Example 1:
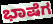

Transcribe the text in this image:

ಭಾಷೆಗ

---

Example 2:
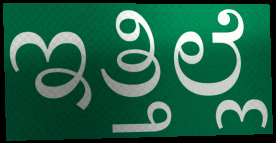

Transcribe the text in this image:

ಇತ್ತಿಲ್ಲೆ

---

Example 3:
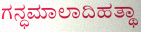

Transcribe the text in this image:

ಗನ್ಧಮಾಲಾದಿಹತ್ಥಾ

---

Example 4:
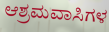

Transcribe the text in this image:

ಆಶ್ರಮವಾಸಿಗಳ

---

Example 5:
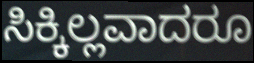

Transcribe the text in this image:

ಸಿಕ್ಕಿಲ್ಲವಾದರೂ